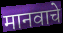
मानवाचे